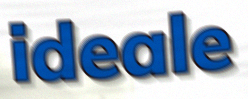
ideale